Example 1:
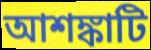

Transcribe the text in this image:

আশঙ্কাটি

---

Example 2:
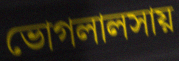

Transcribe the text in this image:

ভোগলালসায়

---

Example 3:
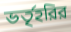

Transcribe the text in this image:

ভর্তৃহরির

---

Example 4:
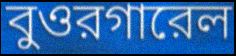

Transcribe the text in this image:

বুওরগারেল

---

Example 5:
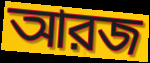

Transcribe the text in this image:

আরজ